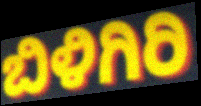
ಬಿಳಿಗಿರಿ